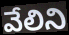
వేలిని